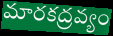
మారకద్రవ్యం